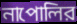
নাপোলির